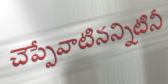
చెప్పేవాటినన్నిటినీ